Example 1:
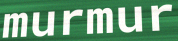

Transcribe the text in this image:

murmur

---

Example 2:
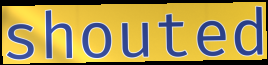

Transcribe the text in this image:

shouted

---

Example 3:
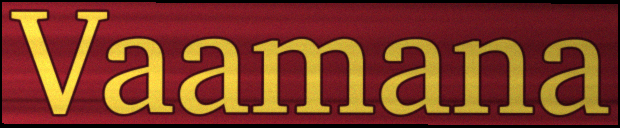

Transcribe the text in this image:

Vaamana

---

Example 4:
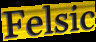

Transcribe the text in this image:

Felsic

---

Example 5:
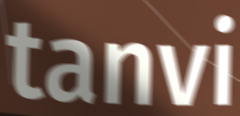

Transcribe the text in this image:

tanvi